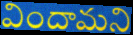
విందామని